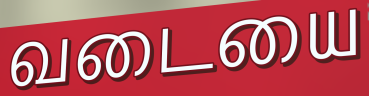
வடையை